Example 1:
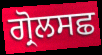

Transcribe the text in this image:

ਗ੍ਰੋਲਸਛ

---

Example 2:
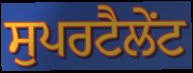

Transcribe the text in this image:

ਸੁਪਰਟੈਲੇਂਟ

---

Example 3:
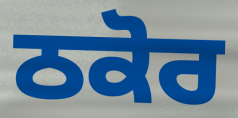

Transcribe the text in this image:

ਠਕੋਰ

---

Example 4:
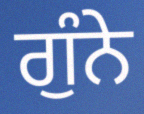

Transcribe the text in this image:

ਗੁੰਨੇ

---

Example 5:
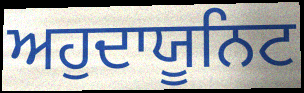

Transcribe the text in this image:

ਅਹੁਦਾਯੂਨਿਟ